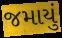
જમાયું